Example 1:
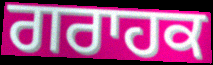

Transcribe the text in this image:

ਗਰਾਹਕ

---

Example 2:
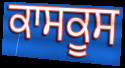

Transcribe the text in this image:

ਕਾਸਕੂਸ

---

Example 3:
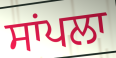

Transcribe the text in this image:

ਸਾਂਪਲਾ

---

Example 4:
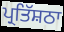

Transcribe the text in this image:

ਪ੍ਰਤਿੱਸ਼ਠਾ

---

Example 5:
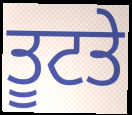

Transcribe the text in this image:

ਤੂਟਤੇ